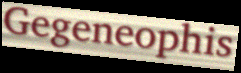
Gegeneophis